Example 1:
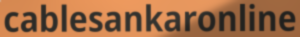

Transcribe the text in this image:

cablesankaronline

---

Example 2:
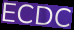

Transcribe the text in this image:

ECDC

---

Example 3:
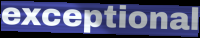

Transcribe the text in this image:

exceptional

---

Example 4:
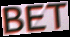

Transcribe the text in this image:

BET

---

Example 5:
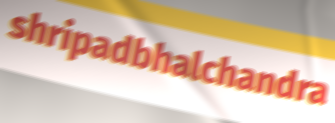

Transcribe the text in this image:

shripadbhalchandra